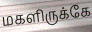
மகளிருக்கே